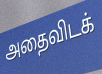
அதைவிடக்